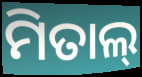
ମିତାଲ୍